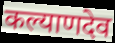
कल्याणदेव